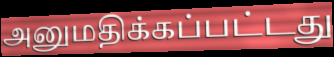
அனுமதிக்கப்பட்டது